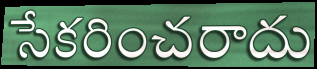
సేకరించరాదు